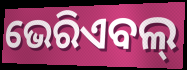
ଭେରିଏବଲ୍